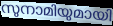
സുനാമിയുമായി